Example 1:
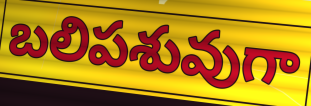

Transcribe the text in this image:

బలిపశువుగా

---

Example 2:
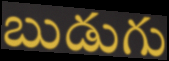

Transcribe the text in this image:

బుడుగు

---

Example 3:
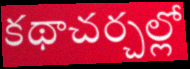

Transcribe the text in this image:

కథాచర్చల్లో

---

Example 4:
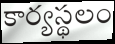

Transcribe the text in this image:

కార్యస్థలం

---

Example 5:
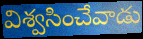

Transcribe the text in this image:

విశ్వసించేవాడు